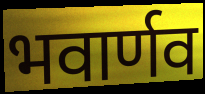
भवार्णव